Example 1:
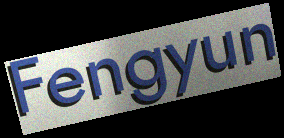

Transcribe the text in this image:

Fengyun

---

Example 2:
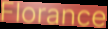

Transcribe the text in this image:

Florance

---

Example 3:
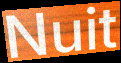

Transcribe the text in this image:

Nuit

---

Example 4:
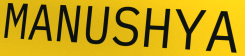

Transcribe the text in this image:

MANUSHYA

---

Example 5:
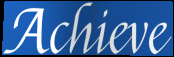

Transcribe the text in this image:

Achieve